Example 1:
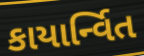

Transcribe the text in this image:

કાયાર્ન્વિત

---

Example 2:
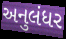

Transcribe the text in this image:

અનુલંધર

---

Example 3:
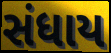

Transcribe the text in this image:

સંધાય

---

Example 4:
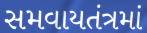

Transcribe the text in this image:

સમવાયતંત્રમાં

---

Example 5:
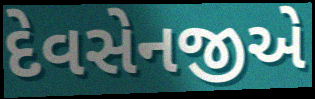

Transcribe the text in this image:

દેવસેનજીએ